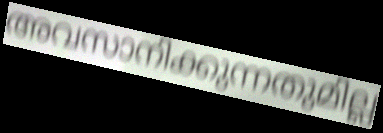
അവസാനിക്കുന്നതുമില്ല